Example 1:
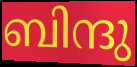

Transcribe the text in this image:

ബിന്ദു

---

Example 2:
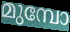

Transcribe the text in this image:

മുമ്പോ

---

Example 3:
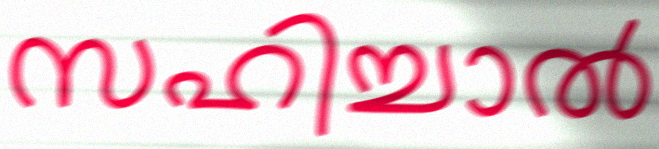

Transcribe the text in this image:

സഹിച്ചാൽ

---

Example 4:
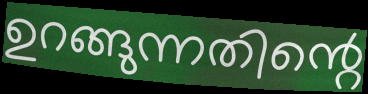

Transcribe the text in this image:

ഉറങ്ങുന്നതിന്റെ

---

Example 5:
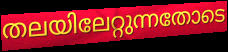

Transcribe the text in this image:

തലയിലേറ്റുന്നതോടെ